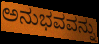
ಅನುಭವವನ್ನು